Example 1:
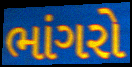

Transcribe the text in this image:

ભાંગરો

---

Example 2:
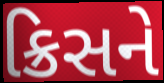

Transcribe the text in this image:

ક્રિસને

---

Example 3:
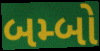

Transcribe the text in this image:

બમ્બો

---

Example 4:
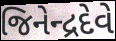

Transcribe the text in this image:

જિનેન્દ્રદેવે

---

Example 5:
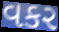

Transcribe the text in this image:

વકર